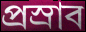
প্রস্রাব